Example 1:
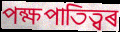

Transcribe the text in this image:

পক্ষপাতিত্বৰ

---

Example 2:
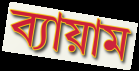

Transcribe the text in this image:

ব্যায়াম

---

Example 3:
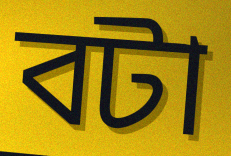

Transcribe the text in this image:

বটা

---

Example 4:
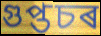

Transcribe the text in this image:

গুপ্তচৰ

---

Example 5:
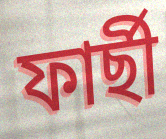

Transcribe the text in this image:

ফাৰ্ছী